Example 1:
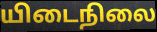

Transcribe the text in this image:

யிடைநிலை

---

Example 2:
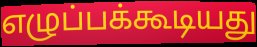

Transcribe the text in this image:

எழுப்பக்கூடியது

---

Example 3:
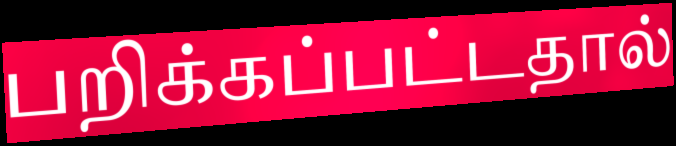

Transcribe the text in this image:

பறிக்கப்பட்டதால்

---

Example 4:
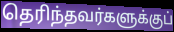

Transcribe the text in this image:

தெரிந்தவர்களுக்குப்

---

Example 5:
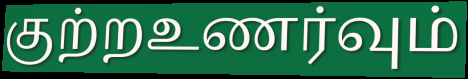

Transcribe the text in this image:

குற்றஉணர்வும்